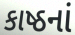
કાષ્ઠનાં